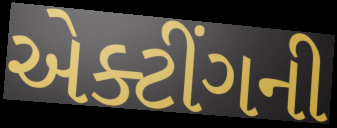
એક્ટીંગની